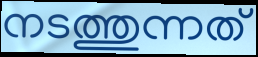
നടത്തുന്നത്